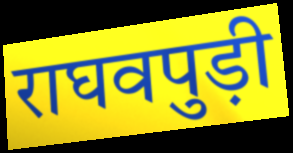
राघवपुड़ी